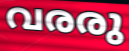
വരരു